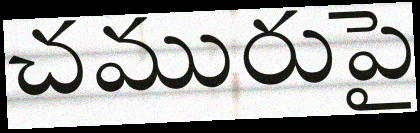
చమురుపై